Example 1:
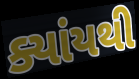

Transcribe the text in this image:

ક્યાંયથી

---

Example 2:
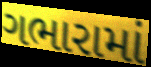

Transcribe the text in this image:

ગભારામાં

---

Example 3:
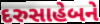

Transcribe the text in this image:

દરુસાહેબને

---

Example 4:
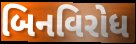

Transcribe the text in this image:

બિનવિરોધ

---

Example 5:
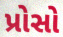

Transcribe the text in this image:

પ્રોસો